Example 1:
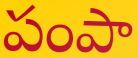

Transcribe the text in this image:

పంపా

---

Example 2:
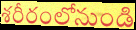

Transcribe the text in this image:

శరీరంలోనుండి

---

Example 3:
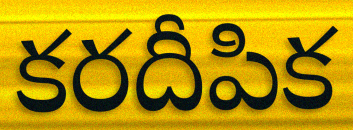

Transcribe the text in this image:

కరదీపిక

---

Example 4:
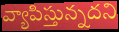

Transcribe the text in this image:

వ్యాపిస్తున్నదని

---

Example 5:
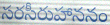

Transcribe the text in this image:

సరసీరుహాననం